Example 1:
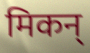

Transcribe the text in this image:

मिकन्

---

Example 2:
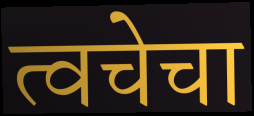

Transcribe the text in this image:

त्वचेचा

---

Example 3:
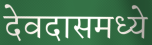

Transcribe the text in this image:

देवदासमध्ये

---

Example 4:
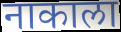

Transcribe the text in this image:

नाकाला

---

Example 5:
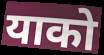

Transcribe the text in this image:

याको